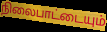
நிலைபாட்டையும்